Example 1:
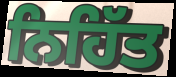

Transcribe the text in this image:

ਨਿਹਿੱਤ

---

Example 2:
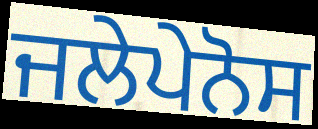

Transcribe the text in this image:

ਜਲੇਪੇਨੋਸ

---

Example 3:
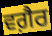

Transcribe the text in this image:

ਵਗ਼ੈਰ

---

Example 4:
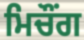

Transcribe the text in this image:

ਮਿਚੌਂਗ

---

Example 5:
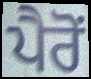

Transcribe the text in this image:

ਪੈਰੋਂ